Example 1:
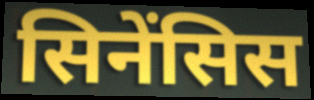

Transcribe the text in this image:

सिनेंसिस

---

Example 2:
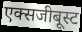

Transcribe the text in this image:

एक्सजीबूस्ट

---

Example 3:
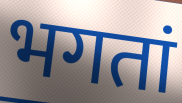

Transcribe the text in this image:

भगतां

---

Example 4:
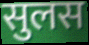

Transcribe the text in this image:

सुलस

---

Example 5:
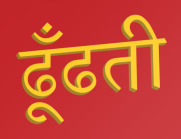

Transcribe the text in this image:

ढूँढती